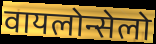
वायलोन्सेलो